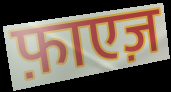
फ़ाएज़